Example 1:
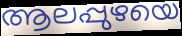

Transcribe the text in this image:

ആലപ്പുഴയെ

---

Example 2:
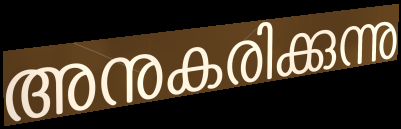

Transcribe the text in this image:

അനുകരിക്കുന്നു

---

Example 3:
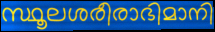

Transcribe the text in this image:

സ്ഥൂലശരീരാഭിമാനി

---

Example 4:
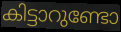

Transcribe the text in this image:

കിട്ടാറുണ്ടോ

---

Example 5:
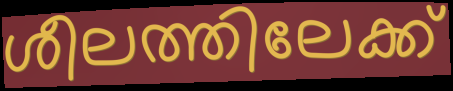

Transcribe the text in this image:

ശീലത്തിലേക്ക്